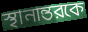
স্থানান্তরকে